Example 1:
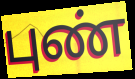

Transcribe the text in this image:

புண்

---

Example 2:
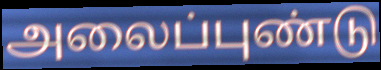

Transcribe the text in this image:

அலைப்புண்டு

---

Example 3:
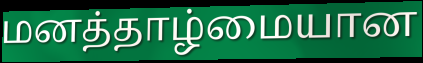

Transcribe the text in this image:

மனத்தாழ்மையான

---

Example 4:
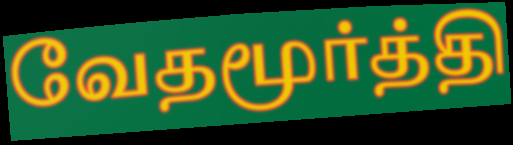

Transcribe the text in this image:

வேதமூர்த்தி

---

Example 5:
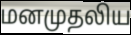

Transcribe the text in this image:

மனமுதலிய